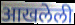
आखलेली